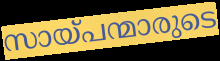
സായ്പന്മാരുടെ